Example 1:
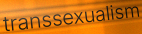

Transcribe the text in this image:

transsexualism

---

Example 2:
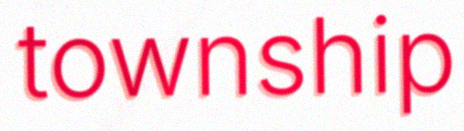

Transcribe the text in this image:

township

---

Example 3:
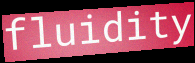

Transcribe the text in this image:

fluidity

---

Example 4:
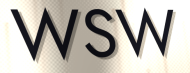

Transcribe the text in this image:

WSW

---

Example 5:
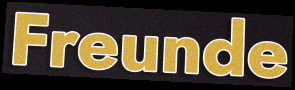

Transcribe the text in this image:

Freunde